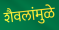
शैवलांमुळे